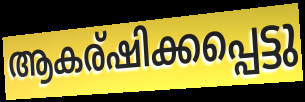
ആകര്ഷിക്കപ്പെട്ടു